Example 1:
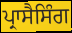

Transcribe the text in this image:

ਪ੍ਰਾਸੈਸਿੰਗ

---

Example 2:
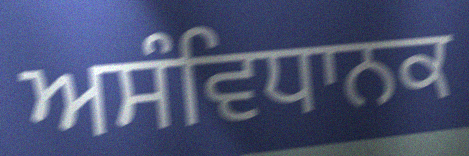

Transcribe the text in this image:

ਅਸੰਵਿਧਾਨਕ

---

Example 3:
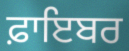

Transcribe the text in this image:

ਫ਼ਾਇਬਰ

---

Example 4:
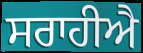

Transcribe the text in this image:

ਸਰਾਹੀਐ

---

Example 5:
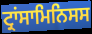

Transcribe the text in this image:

ਟ੍ਰਾਂਸਾਮਿਨਿਸਸ